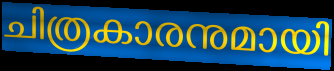
ചിത്രകാരനുമായി